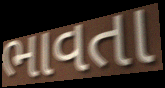
ભાવતા